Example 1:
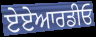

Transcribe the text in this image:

ਏਏਆਰਡੀਓ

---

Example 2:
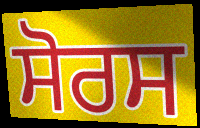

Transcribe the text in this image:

ਸੋਰਸ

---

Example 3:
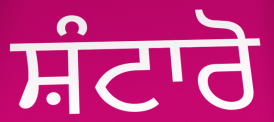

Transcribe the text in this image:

ਸ਼ੰਟਾਰੋ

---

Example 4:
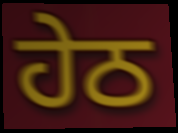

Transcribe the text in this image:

ਹੇਠ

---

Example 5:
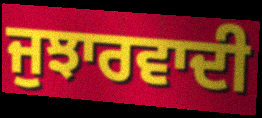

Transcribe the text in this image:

ਜੁਝਾਰਵਾਦੀ